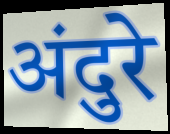
अंदुरे